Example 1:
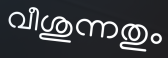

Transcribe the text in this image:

വീശുന്നതും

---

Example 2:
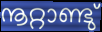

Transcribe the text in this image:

നൂറ്റാണ്ടു്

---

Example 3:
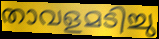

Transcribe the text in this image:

താവളമടിച്ചു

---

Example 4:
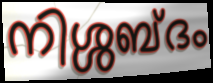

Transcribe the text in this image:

നിശ്ശബ്ദം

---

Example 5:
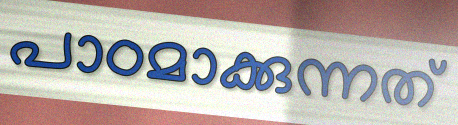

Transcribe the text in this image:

പാഠമാക്കുന്നത്